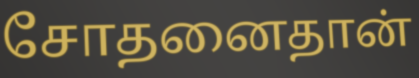
சோதனைதான்